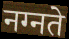
नग्नते